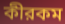
কীরকম